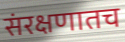
संरक्षणातच